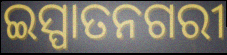
ଇସ୍ପାତନଗରୀ